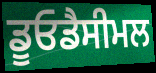
ਡੂਓਡੈਸੀਮਲ